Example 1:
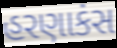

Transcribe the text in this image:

હરણાકંસ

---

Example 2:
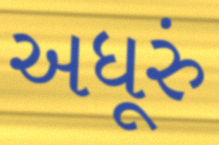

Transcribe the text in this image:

અધૂરું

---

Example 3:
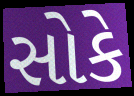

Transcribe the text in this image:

સોકે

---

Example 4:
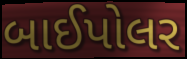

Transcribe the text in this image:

બાઈપોલર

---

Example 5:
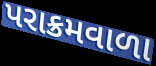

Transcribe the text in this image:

પરાક્રમવાળા